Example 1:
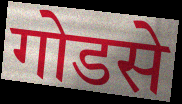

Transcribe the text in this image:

गोडसे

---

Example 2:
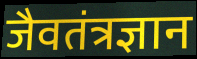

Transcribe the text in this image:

जैवतंत्रज्ञान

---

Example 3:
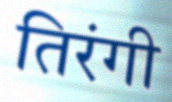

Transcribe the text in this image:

तिरंगी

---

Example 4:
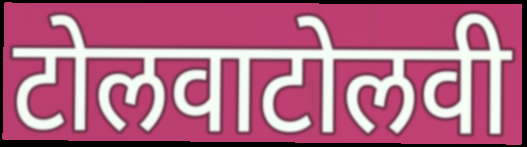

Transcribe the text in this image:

टोलवाटोलवी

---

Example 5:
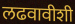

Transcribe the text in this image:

लढवावीशी